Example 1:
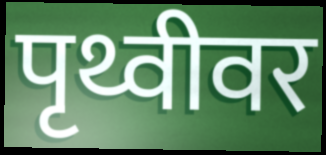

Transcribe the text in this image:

पृथ्वीवर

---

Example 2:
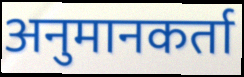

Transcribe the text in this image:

अनुमानकर्ता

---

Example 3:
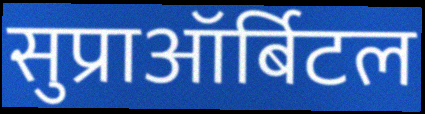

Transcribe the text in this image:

सुप्राऑर्बिटल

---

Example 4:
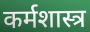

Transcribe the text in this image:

कर्मशास्त्र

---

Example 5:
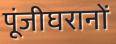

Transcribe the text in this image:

पूंजीघरानों